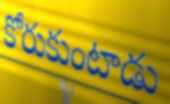
కోరుకుంటాడు